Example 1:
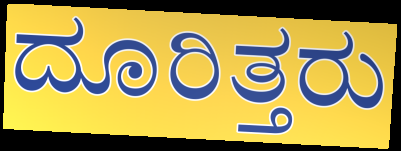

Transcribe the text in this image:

ದೂರಿತ್ತರು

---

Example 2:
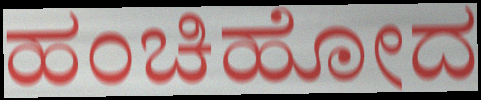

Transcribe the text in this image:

ಹಂಚಿಹೋದ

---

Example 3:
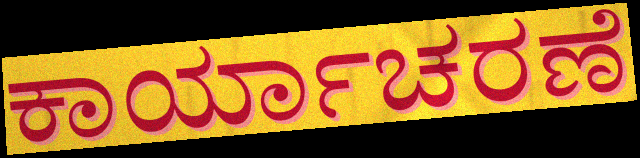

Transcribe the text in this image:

ಕಾರ್ಯಾಚರಣೆ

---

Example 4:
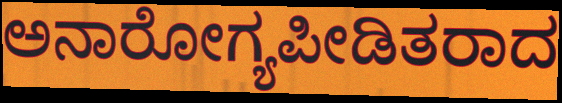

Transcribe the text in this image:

ಅನಾರೋಗ್ಯಪೀಡಿತರಾದ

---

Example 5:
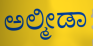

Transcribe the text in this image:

ಅಲ್ಮೀಡಾ